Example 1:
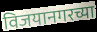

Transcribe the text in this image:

विजयानगरच्या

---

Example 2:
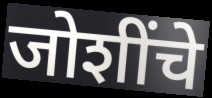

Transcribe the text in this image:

जोशींचे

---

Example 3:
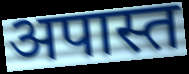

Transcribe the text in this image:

अपास्त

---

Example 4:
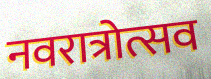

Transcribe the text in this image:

नवरात्रोत्सव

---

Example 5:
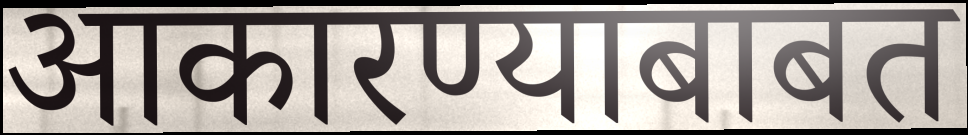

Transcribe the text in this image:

आकारण्याबाबत